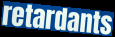
retardants